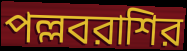
পল্লবরাশির